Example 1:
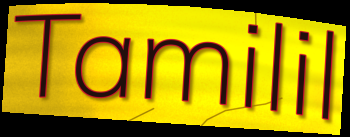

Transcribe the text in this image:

Tamilil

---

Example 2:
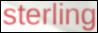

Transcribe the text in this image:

sterling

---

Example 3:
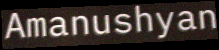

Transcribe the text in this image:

Amanushyan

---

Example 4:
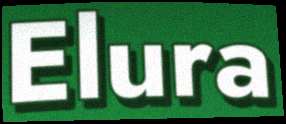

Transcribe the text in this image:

Elura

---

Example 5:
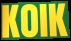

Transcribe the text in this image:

KOIK